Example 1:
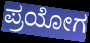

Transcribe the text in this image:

ಪ್ರಯೋಗ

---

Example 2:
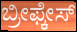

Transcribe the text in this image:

ಬ್ರೀಫ್ಕೇಸ್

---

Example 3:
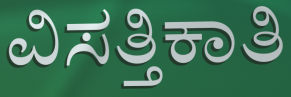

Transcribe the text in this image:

ವಿಸತ್ತಿಕಾತಿ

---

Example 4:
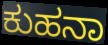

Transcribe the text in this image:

ಕುಹನಾ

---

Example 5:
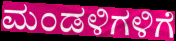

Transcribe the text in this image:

ಮಂಡಳಿಗಳಿಗೆ